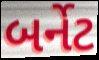
બર્નેટ